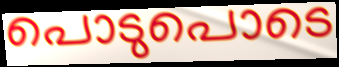
പൊടുപൊടെ